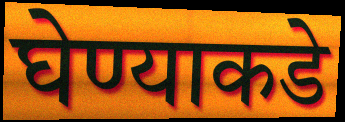
घेण्याकडे